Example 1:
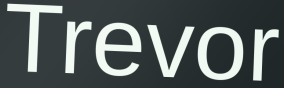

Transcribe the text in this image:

Trevor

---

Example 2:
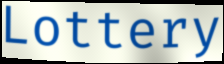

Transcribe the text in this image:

Lottery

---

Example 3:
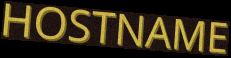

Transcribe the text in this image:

HOSTNAME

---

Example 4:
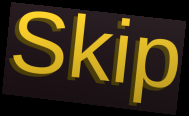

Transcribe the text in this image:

Skip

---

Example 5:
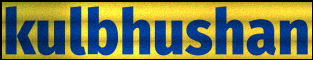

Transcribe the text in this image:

kulbhushan